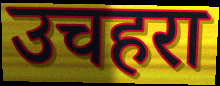
उचहरा